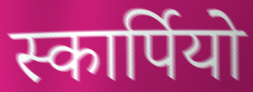
स्कार्पियो